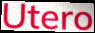
Utero